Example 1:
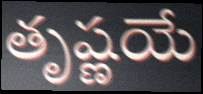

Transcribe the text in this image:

తృష్ణయే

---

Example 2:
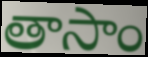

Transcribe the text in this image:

తాసాం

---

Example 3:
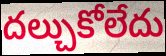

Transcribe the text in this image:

దల్చుకోలేదు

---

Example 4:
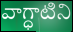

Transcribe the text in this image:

వాగ్ధాటిని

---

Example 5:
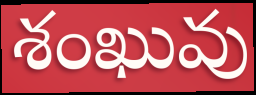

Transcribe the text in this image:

శంఖువు